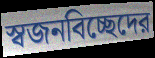
স্বজনবিচ্ছেদের